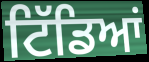
ਟਿੱਡਿਆਂ